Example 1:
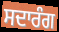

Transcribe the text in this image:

ਸਦਾਰੰਗ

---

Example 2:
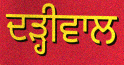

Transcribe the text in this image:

ਦੜ੍ਹੀਵਾਲ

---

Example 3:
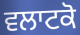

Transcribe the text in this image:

ਵਲਾਟਕੋ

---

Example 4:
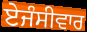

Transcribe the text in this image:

ਏਜੰਸੀਵਾਰ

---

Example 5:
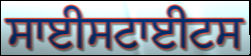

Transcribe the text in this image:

ਸਾਈਸਟਾਈਟਸ